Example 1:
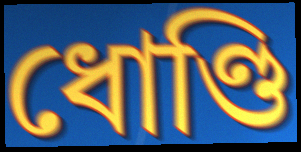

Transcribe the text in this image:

ধোণ্ডি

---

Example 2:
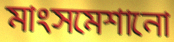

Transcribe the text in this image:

মাংসমেশানো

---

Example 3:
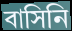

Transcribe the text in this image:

বাসিনি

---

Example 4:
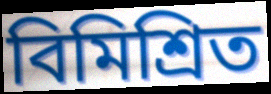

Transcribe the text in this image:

বিমিশ্রিত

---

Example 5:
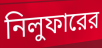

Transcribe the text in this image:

নিলুফারের